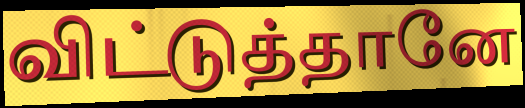
விட்டுத்தானே